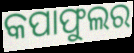
କପାଫୁଲର